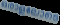
ഒരാളലോടെ